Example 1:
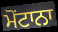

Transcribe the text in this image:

ਮੋਂਟਾਨਾ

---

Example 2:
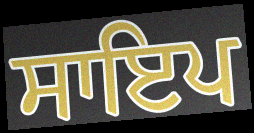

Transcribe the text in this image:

ਸਾਇਪ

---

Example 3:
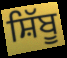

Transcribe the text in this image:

ਸ਼ਿੱਬੂ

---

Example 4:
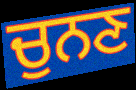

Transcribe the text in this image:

ਚੁਨਣ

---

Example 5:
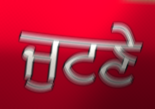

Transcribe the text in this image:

ਜੁਟਣੇ